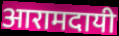
आरामदायी